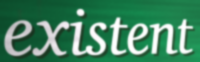
existent